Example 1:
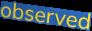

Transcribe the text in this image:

observed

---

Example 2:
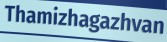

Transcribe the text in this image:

Thamizhagazhvan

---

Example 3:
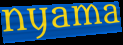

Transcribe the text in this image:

nyama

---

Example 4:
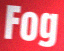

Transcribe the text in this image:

Fog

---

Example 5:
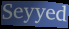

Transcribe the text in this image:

Seyyed